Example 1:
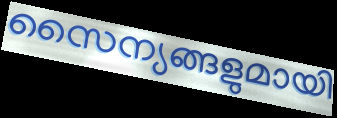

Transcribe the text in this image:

സൈന്യങ്ങളുമായി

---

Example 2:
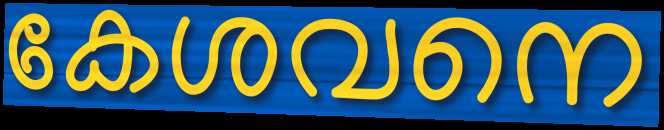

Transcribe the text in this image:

കേശവനെ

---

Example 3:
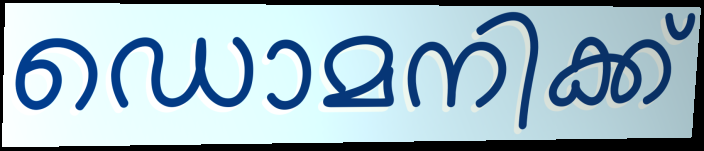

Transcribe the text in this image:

ഡൊമനിക്ക്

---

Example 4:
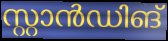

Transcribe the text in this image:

സ്റ്റാൻഡിങ്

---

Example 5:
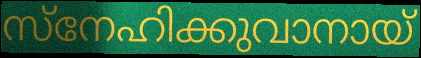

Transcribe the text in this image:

സ്നേഹിക്കുവാനായ്